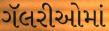
ગૅલરીઓમાં